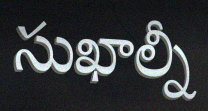
సుఖాల్నీ